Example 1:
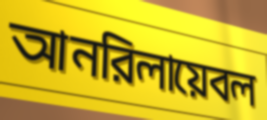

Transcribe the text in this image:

আনরিলায়েবল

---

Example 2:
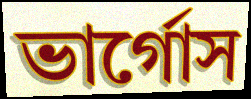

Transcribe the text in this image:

ভার্গোস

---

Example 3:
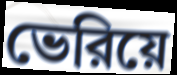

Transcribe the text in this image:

ভেরিয়ে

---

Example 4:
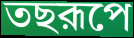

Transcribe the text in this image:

তছরূপে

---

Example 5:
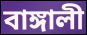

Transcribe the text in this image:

বাঙ্গালী